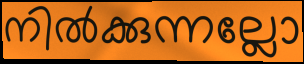
നിൽക്കുന്നല്ലോ